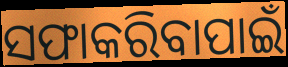
ସଫାକରିବାପାଇଁ